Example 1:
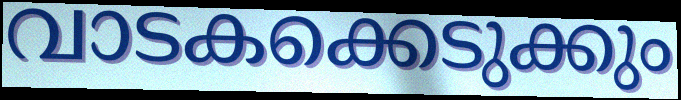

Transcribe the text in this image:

വാടകക്കെടുക്കും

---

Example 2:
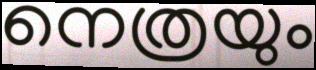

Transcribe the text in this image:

നെത്രയും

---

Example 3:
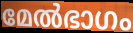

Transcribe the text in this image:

മേൽഭാഗം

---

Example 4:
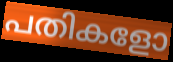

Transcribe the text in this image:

പതികളോ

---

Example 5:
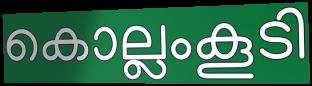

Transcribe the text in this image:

കൊല്ലംകൂടി